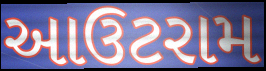
આઉટરામ